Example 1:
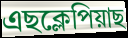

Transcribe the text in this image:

এছক্লেপিয়াছ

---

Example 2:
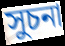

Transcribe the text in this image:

সুচনা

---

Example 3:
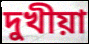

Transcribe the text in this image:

দুখীয়া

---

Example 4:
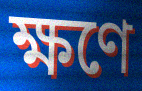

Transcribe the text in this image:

ক্ষণে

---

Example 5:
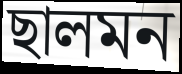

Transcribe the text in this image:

ছালমন